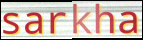
sarkha